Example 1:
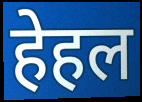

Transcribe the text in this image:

हेहल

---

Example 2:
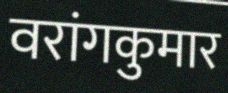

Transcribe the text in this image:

वरांगकुमार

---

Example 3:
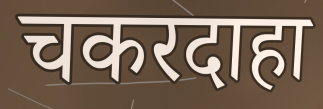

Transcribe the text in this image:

चकरदाहा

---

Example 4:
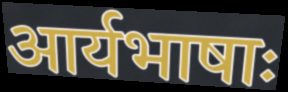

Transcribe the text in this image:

आर्यभाषाः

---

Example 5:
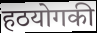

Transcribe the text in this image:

हठयोगकी